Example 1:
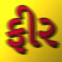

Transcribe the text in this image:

ફીર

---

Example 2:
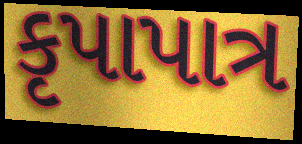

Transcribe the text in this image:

કૃપાપાત્ર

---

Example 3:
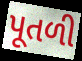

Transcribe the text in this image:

પૂતળી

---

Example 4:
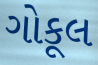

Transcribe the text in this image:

ગોકૂલ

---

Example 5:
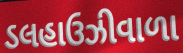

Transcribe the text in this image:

ડલહાઉઝીવાળા